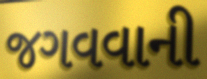
જગવવાની